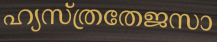
ഹ്യസ്ത്രതേജസാ